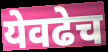
येवढेच